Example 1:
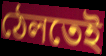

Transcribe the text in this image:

ঠেলতেই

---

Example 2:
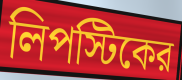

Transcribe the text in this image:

লিপস্টিকের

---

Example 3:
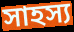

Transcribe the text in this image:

সাহস্য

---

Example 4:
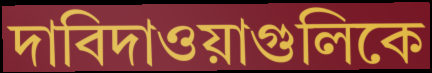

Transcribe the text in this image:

দাবিদাওয়াগুলিকে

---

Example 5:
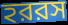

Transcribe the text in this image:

হররস